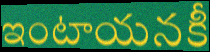
ఇంటాయనకీ